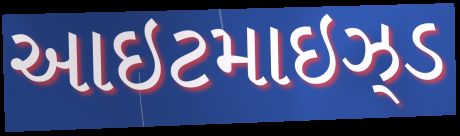
આઇટમાઇઝ્ડ